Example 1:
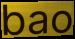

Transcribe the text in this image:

bao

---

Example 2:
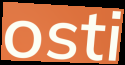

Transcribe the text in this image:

osti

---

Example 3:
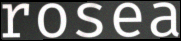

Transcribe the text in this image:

rosea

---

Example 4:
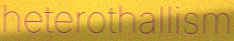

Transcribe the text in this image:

heterothallism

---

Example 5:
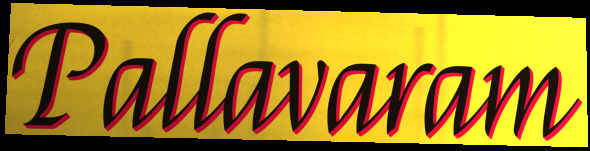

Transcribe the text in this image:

Pallavaram